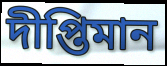
দীপ্তিমান